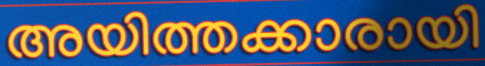
അയിത്തക്കാരായി